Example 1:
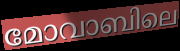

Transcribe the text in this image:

മോവാബിലെ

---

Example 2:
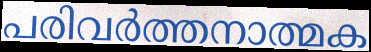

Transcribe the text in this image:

പരിവർത്തനാത്മക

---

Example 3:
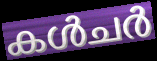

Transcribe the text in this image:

കൾചർ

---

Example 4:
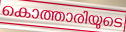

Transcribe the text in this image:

കൊത്താരിയുടെ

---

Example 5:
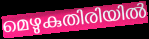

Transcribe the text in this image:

മെഴുകുതിരിയിൽ